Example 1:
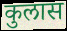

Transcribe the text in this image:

कुलास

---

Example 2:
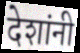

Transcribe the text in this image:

देशांनी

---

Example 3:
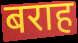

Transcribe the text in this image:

बराह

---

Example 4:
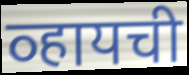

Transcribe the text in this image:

व्हायची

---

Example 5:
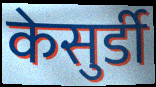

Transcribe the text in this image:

केसुर्डी